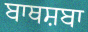
ਬਾਥਸ਼ਬਾ